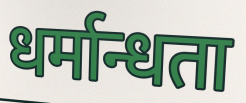
धर्मान्धता